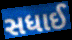
સધાઈ